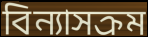
বিন্যাসক্রম